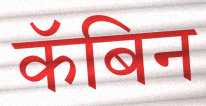
कॅबिन